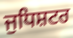
ਜੁਧਿਸ਼ਟਰ